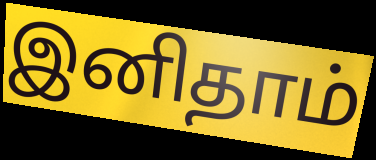
இனிதாம்